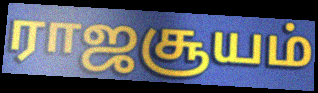
ராஜசூயம்